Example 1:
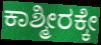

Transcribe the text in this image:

ಕಾಶ್ಮೀರಕ್ಕೇ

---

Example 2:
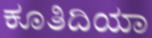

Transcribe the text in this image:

ಕೂತಿದಿಯಾ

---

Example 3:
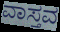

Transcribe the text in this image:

ವಾಸ್ತವ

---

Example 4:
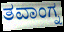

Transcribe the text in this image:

ತವಾಂಗ್ನ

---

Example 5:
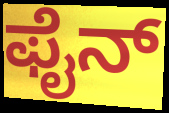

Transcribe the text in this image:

ಫೈನ್